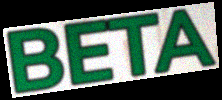
BETA